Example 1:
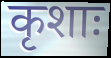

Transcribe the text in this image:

कृशाः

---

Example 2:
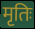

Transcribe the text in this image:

मृतिः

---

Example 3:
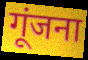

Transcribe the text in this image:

गूंजना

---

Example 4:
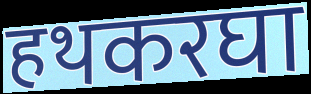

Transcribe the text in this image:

हथकरघा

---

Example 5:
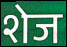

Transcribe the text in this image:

शेज